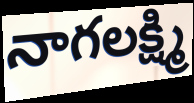
నాగలక్ష్మి